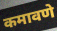
कमावणे